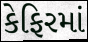
કેફિરમાં